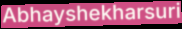
Abhayshekharsuri